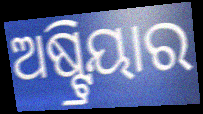
ଅଷ୍ଟ୍ରିୟାର